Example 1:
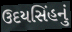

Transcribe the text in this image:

ઉદયસિંહનું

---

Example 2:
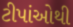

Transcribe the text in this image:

ટીપાંઓથી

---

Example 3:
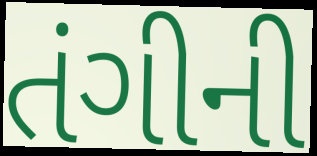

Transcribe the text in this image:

તંગીની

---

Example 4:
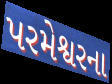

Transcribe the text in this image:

પરમેશ્વરના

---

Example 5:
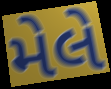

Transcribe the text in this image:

મેલે